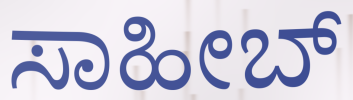
ಸಾಹೀಬ್